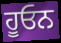
ਹੂਓਨ